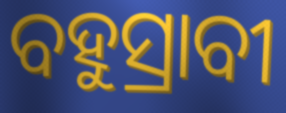
ବହୁସ୍ରାବୀ